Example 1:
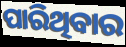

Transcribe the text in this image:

ପାରିଥିବାର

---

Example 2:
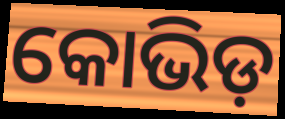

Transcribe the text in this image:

କୋଭିଡ଼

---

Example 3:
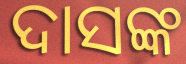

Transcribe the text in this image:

ଦାସଙ୍କ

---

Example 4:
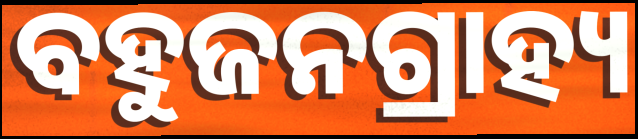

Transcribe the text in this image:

ବହୁଜନଗ୍ରାହ୍ୟ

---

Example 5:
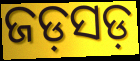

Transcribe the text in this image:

ଜଡ଼ସଡ଼